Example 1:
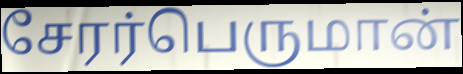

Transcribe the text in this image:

சேரர்பெருமான்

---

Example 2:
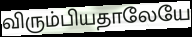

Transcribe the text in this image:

விரும்பியதாலேயே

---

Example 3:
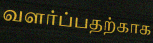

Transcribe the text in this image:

வளர்ப்பதற்காக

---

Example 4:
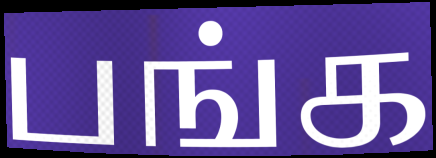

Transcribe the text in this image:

பங்க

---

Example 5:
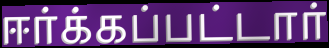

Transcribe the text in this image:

ஈர்க்கப்பட்டார்